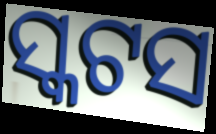
ସ୍କଟସ